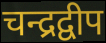
चन्द्रद्वीप